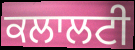
ਕਲਾਲਟੀ